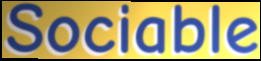
Sociable